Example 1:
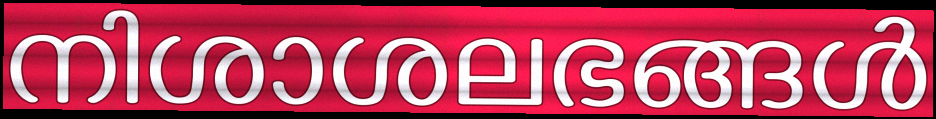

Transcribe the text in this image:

നിശാശലഭങ്ങൾ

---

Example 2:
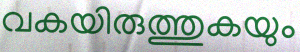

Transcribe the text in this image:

വകയിരുത്തുകയും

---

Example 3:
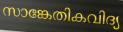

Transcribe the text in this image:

സാങ്കേതികവിദ്യ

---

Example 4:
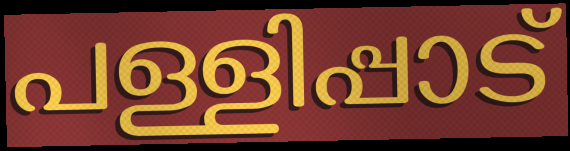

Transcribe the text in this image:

പള്ളിപ്പാട്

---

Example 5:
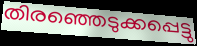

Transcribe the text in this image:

തിരഞ്ഞെടുക്കപ്പെട്ടു